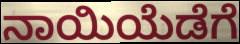
ನಾಯಿಯೆಡೆಗೆ